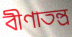
বীণাতন্ত্র